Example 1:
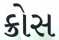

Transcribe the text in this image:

ક્રોસ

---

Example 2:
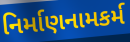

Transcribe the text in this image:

નિર્માણનામકર્મ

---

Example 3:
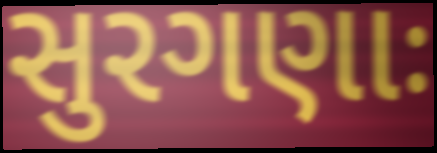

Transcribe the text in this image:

સુરગણાઃ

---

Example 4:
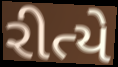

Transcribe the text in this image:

રીત્યે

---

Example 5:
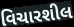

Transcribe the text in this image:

વિચારશીલ